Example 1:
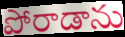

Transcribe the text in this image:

పోరాడాను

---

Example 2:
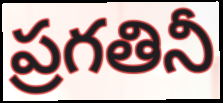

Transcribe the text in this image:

ప్రగతినీ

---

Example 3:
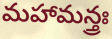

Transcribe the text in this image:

మహామన్త్రః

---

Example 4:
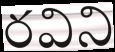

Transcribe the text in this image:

రవిని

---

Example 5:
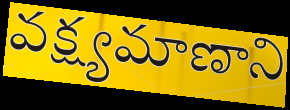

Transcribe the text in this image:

వక్ష్యమాణాని